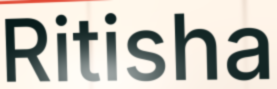
Ritisha